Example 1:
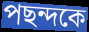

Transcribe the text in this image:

পছন্দকে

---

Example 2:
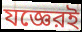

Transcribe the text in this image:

যজ্ঞেরই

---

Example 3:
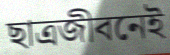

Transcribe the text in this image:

ছাত্রজীবনেই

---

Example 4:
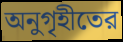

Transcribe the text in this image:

অনুগৃহীতের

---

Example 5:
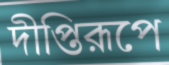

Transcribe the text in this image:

দীপ্তিরূপে